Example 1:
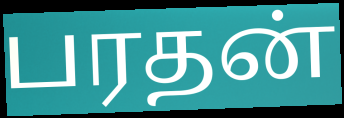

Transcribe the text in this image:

பரதன்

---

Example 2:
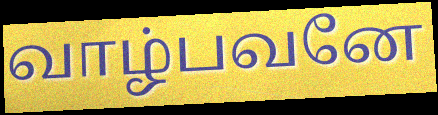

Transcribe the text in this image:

வாழ்பவனே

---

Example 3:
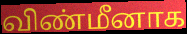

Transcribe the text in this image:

விண்மீனாக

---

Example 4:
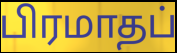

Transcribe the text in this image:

பிரமாதப்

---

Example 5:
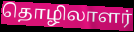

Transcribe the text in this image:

தொழிலாளர்